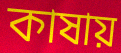
কাষায়